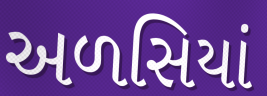
અળસિયાં